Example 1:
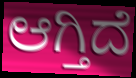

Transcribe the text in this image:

ಆಗ್ತಿದೆ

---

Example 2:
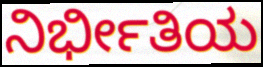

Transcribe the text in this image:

ನಿರ್ಭೀತಿಯ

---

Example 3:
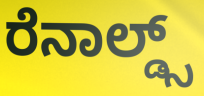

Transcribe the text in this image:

ರೆನಾಲ್ಡ್ಸ್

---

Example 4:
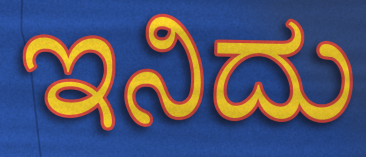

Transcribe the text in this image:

ಇನಿದು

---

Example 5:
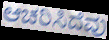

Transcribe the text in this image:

ಆಚರಿಸಿದೆವು